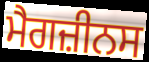
ਮੈਗਜ਼ੀਨਸ